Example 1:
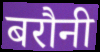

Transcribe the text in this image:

बरौनी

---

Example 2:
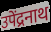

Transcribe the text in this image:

उपेंद्रनाथ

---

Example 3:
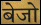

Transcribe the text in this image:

बेजो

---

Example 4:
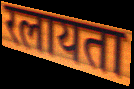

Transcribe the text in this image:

रलायता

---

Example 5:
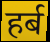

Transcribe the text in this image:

हर्ब